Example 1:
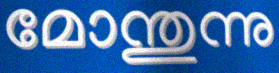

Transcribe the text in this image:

മോന്തുന്നു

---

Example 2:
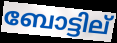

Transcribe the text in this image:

ബോട്ടില്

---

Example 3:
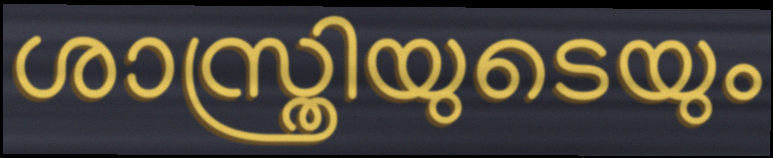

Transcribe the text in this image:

ശാസ്ത്രിയുടെയും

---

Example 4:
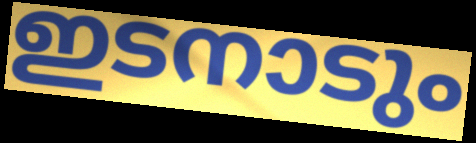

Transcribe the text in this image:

ഇടനാടും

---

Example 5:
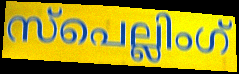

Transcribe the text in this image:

സ്പെല്ലിംഗ്